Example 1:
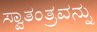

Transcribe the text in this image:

ಸ್ವಾತಂತ್ರವನ್ನು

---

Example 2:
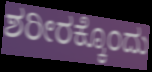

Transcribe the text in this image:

ಶರೀರಕ್ಕೊಂದು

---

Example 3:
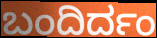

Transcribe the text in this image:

ಬಂದಿರ್ದಂ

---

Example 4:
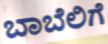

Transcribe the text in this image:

ಬಾಬೆಲಿಗೆ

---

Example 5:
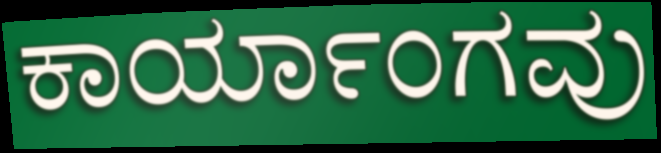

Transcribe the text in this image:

ಕಾರ್ಯಾಂಗವು